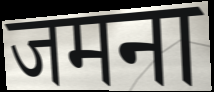
जमना